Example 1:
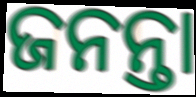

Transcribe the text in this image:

ଜନନ୍ତା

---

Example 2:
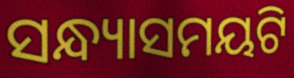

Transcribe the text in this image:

ସନ୍ଧ୍ୟାସମୟଟି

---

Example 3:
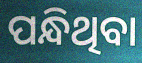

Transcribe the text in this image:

ପନ୍ଧିଥିବା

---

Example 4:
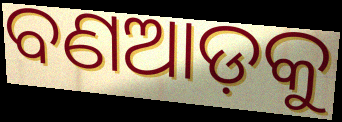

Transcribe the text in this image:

ବଣଆଡ଼କୁ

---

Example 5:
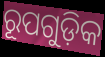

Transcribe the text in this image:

ରୂପଗୁଡ଼ିକ